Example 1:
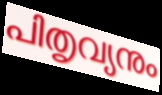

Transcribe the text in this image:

പിതൃവ്യനും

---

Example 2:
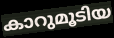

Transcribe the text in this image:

കാറുമൂടിയ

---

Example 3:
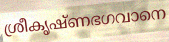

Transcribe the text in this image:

ശ്രീകൃഷ്ണഭഗവാനെ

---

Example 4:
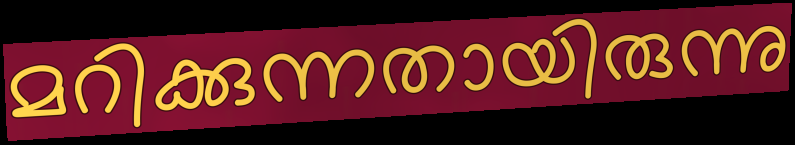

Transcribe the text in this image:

മറിക്കുന്നതായിരുന്നു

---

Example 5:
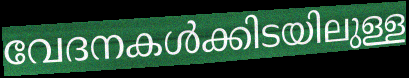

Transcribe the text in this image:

വേദനകൾക്കിടയിലുള്ള